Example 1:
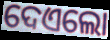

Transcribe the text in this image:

ଦେଏଲୋ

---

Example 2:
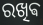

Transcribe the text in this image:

ରଖିଵ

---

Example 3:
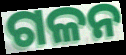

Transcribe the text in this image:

ଗଳନ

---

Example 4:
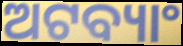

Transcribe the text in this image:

ଅଟବ୍ୟାଂ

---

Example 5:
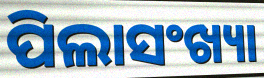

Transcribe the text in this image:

ପିଲାସଂଖ୍ୟା